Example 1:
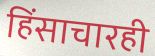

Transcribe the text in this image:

हिंसाचारही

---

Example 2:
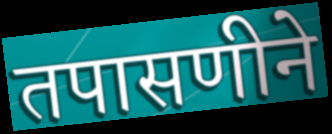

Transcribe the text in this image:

तपासणीने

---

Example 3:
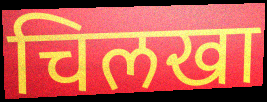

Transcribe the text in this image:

चिलखा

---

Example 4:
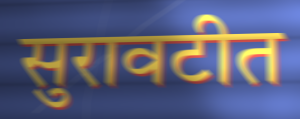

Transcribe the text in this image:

सुरावटीत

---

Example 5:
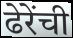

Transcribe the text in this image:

ढेरेंची